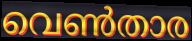
വെൺതാര